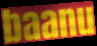
baanu